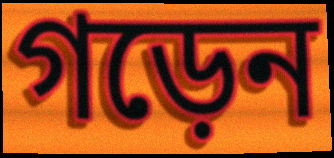
গড়েন